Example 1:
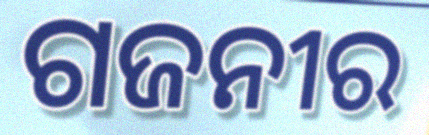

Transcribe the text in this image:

ଗଜନୀର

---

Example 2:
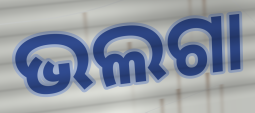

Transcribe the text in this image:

ଭଲଗା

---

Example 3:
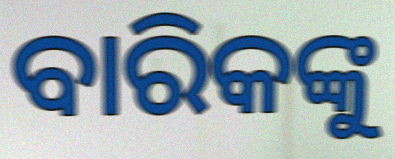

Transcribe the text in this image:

ବାରିକଙ୍କୁ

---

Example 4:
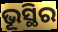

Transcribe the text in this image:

ଭୂସ୍ଥିର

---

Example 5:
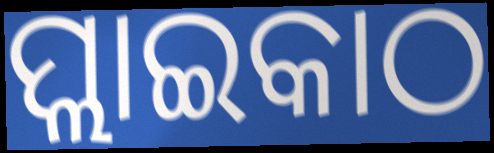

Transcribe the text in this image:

ପ୍ଲାଇକାଠ